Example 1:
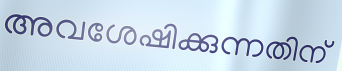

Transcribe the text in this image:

അവശേഷിക്കുന്നതിന്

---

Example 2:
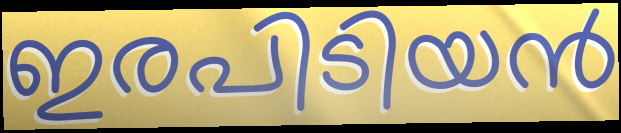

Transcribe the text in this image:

ഇരപിടിയൻ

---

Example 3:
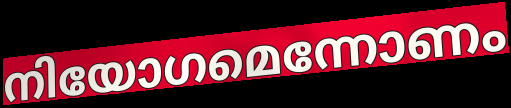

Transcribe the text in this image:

നിയോഗമെന്നോണം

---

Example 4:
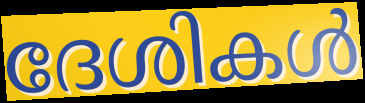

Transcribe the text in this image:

ദേശികൾ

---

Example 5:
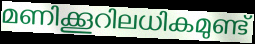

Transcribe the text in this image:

മണിക്കൂറിലധികമുണ്ട്